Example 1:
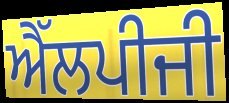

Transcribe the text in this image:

ਐੱਲਪੀਜੀ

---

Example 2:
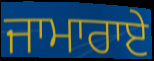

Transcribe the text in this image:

ਜਾਮਾਰਾਏ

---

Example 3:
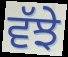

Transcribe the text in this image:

ਵੱਝੇ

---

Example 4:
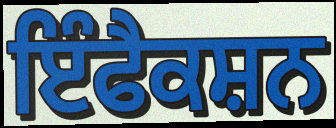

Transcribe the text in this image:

ਇੰਫੈਕਸ਼ਨ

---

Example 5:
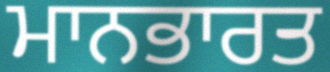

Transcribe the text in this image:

ਮਾਨਭਾਰਤ